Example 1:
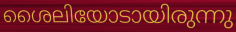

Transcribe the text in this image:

ശൈലിയോടായിരുന്നു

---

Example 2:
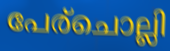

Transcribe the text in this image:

പേര്ചൊല്ലി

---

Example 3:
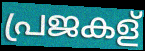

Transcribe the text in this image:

പ്രജകള്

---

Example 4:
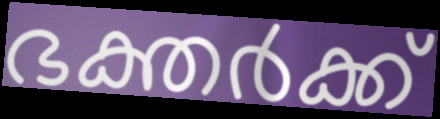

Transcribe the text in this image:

ഭക്തർക്ക്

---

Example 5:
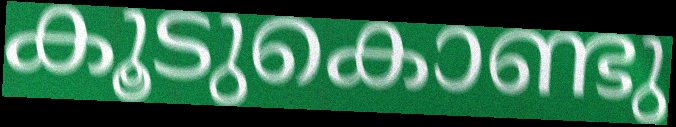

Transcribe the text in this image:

കൂടുകൊണ്ടു